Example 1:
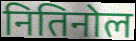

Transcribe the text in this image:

नितिनोल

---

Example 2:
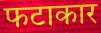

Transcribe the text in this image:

फटाकार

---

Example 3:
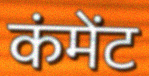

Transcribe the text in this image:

कंमेंट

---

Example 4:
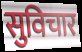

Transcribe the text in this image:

सुविचार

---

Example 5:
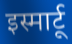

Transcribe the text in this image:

इस्मार्टू